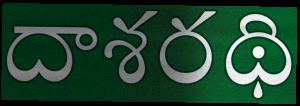
దాశరథి